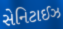
સેનિટાઈઝ